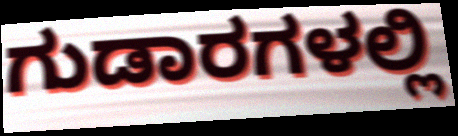
ಗುಡಾರಗಳಲ್ಲಿ